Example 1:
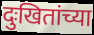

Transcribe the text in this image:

दुःखितांच्या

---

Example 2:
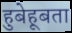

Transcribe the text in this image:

हुबेहूबता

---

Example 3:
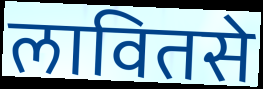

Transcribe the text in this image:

लावितसे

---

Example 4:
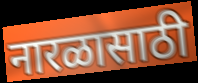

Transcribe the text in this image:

नारळासाठी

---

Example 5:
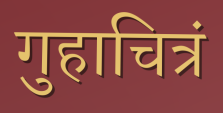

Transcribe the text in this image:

गुहाचित्रं